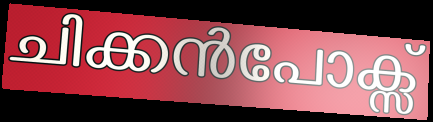
ചിക്കൻപോക്സ്